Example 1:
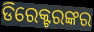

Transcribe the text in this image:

ଡିରେକ୍ଟରଙ୍କର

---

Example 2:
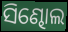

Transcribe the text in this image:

ସିଣ୍ଢୋଲ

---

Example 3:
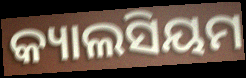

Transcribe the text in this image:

କ୍ୟାଲସିୟମ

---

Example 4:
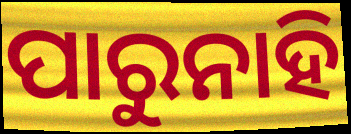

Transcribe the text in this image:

ପାରୁନାହି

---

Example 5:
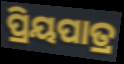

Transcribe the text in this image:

ପ୍ରିୟପାତ୍ର